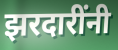
झरदारींनी